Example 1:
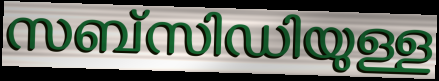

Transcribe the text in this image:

സബ്സിഡിയുള്ള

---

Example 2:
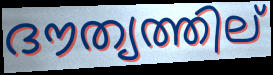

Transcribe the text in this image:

ദൗത്യത്തില്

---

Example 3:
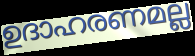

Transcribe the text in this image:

ഉദാഹരണമല്ല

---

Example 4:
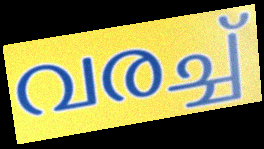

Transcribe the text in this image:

വരച്ച്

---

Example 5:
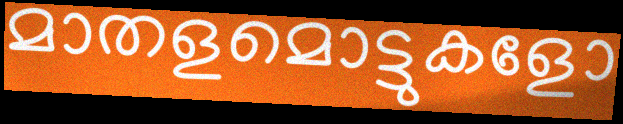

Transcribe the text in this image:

മാതളമൊട്ടുകളോ